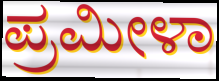
ಪ್ರಮೀಳಾ